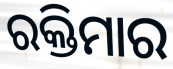
ରକ୍ତିମାର